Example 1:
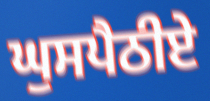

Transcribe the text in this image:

ਘੁਸਪੈਠੀਏ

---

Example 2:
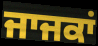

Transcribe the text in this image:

ਜਾਜਕਾਂ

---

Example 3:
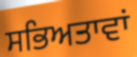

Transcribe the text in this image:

ਸਭਿਅਤਾਵਾਂ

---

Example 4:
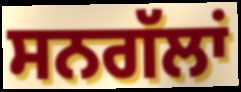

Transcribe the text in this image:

ਸਨਗੱਲਾਂ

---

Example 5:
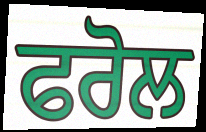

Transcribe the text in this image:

ਫਰੋਲ